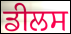
ਡੀਲਸ